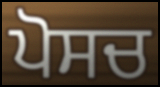
ਪੋਸਚ